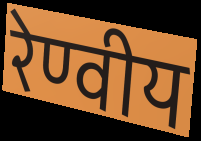
रेण्वीय